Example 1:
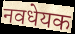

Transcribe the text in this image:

नवधेयक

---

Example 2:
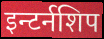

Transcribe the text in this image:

इन्टर्नशिप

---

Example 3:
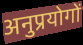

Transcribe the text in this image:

अनुप्रयोगों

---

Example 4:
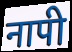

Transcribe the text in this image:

नापी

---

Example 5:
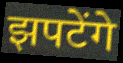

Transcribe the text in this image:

झपटेंगे